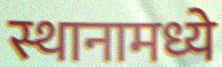
स्थानामध्ये